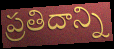
ప్రతిదాన్ని